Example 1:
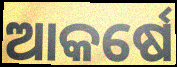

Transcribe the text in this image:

ଆକର୍ଷେ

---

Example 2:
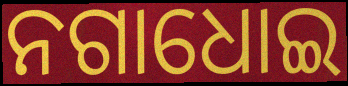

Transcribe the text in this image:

ନଗାଧୋଇ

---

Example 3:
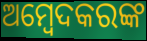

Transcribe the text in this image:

ଅମ୍ବେଦକରଙ୍କ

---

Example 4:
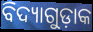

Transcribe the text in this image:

ବିଦ୍ୟାଗୁଡ଼ାକ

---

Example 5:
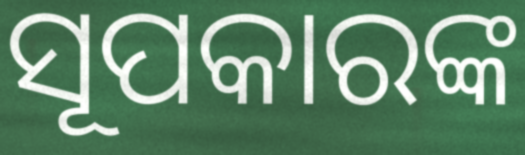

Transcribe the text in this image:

ସୂପକାରଙ୍କ